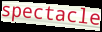
spectacle